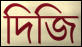
দিজি